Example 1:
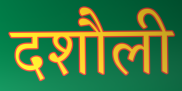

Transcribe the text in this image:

दशौली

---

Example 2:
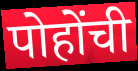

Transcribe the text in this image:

पोहोंची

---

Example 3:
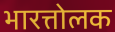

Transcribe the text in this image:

भारत्तोलक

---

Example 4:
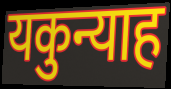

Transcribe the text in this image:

यकुन्याह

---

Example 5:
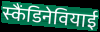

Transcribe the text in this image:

स्कैंडिनेवियाई